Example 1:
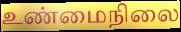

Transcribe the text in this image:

உண்மைநிலை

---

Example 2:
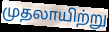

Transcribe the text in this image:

முதலாயிற்று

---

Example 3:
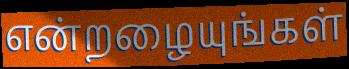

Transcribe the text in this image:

என்றழையுங்கள்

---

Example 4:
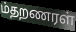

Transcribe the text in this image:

ம்தறணரள்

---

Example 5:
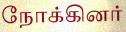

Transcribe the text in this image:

நோக்கினர்